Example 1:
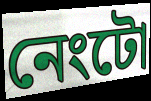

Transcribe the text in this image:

নেংটো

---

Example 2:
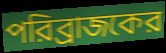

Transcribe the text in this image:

পরিব্রাজকের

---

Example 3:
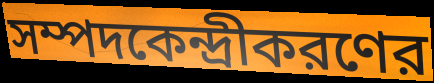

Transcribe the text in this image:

সম্পদকেন্দ্রীকরণের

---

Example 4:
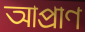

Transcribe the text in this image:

আপ্রাণ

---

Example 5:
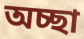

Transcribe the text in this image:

অচ্ছা